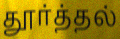
தூர்த்தல்